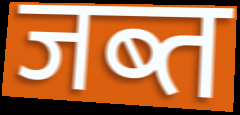
जब्त